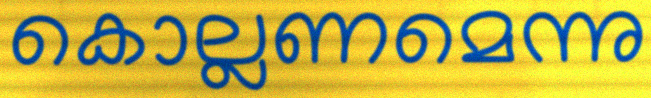
കൊല്ലണമെന്നു